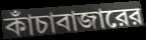
কাঁচাবাজারের